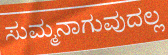
ಸುಮ್ಮನಾಗುವುದಲ್ಲ